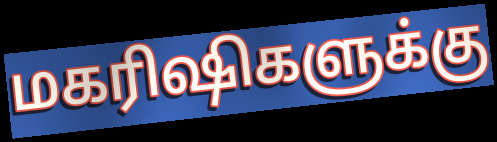
மகரிஷிகளுக்கு